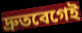
দ্রুতবেগেই